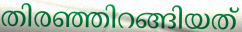
തിരഞ്ഞിറങ്ങിയത്